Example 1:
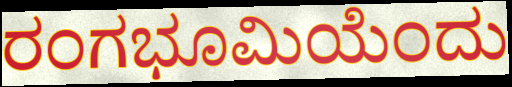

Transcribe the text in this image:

ರಂಗಭೂಮಿಯೆಂದು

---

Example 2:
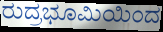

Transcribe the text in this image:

ರುದ್ರಭೂಮಿಯಿಂದ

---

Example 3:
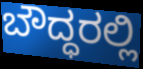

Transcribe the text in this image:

ಬೌದ್ಧರಲ್ಲಿ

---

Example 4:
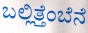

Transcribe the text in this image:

ಬಲ್ಲಿತ್ತೆಂಬೆನೆ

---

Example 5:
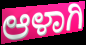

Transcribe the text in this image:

ಆಳಾಗಿ